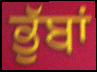
ਭੁੱਬਾਂ